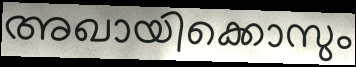
അഖായിക്കൊസും